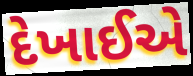
દેખાઈએ